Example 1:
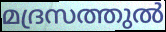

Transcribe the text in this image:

മദ്രസത്തുൽ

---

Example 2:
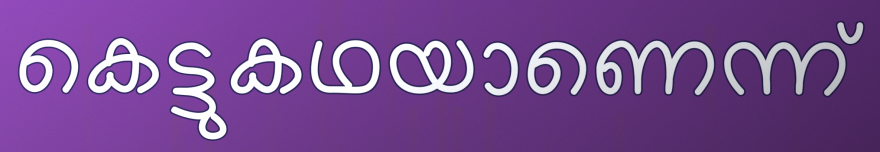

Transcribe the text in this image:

കെട്ടുകഥയാണെന്ന്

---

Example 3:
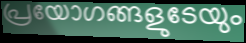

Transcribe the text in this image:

പ്രയോഗങ്ങളുടേയും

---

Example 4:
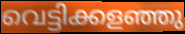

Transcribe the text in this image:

വെട്ടിക്കളഞ്ഞു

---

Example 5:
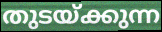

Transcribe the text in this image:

തുടയ്ക്കുന്ന